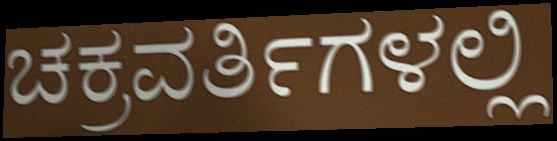
ಚಕ್ರವರ್ತಿಗಳಲ್ಲಿ